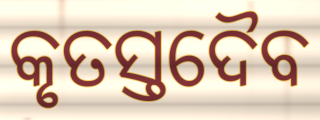
କୃତସ୍ତଦୈବ